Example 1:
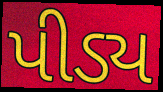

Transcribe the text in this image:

પીડ્ય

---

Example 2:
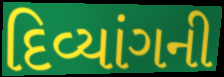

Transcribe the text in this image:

દિવ્યાંગની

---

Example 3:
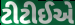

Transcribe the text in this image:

ટીટીઈએ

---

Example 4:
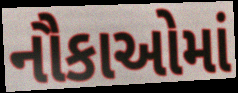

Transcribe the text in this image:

નૌકાઓમાં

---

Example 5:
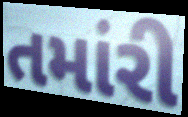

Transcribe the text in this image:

તમાંરી